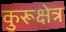
कुरूक्षेत्र